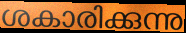
ശകാരിക്കുന്നു